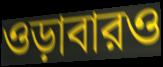
ওড়াবারও